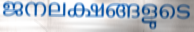
ജനലക്ഷങ്ങളുടെ